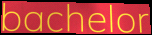
bachelor